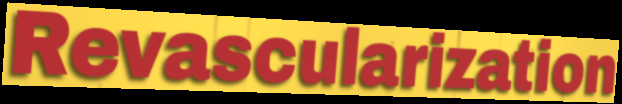
Revascularization